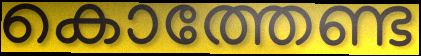
കൊത്തേണ്ട